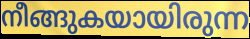
നീങ്ങുകയായിരുന്ന